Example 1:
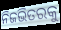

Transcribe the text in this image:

ନିଜଭିତରକୁ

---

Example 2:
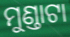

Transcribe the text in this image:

ମୁଣ୍ଡାଟା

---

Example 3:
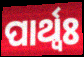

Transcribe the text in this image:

ପାର୍ଥ୍ବଃ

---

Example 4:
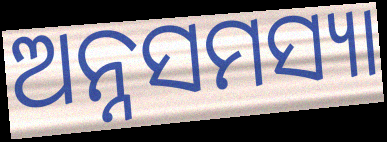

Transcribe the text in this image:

ଅନ୍ନସମସ୍ୟା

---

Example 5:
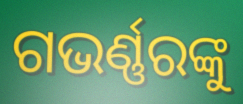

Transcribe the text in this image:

ଗଭର୍ଣ୍ଣରଙ୍କୁ